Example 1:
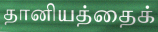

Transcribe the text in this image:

தானியத்தைக்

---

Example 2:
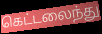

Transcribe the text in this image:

கெட்டலைந்து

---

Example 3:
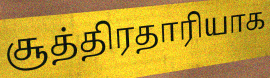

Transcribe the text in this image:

சூத்திரதாரியாக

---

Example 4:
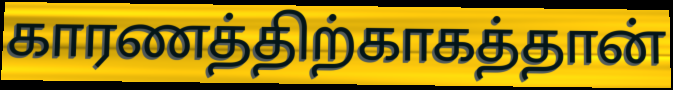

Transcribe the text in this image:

காரணத்திற்காகத்தான்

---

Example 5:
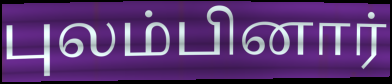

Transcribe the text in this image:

புலம்பினார்